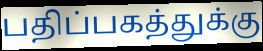
பதிப்பகத்துக்கு